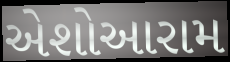
એશોઆરામ